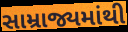
સામ્રાજ્યમાંથી